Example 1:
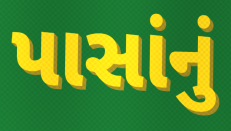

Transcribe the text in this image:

પાસાંનું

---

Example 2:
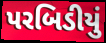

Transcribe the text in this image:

પરબિડીયું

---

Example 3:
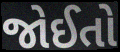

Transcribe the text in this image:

જોઈતો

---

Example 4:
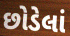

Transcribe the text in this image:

છોડેલાં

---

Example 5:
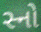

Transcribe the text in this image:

સ્નો